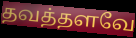
தவத்தளவே